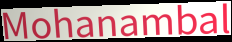
Mohanambal